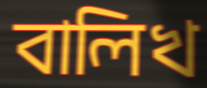
বালিখ